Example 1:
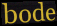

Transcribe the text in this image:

bode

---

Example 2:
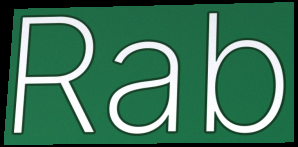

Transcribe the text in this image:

Rab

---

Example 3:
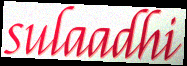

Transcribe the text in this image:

sulaadhi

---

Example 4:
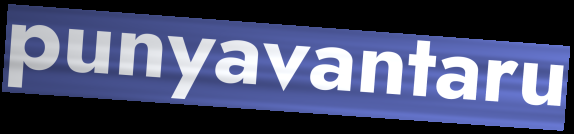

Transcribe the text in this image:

punyavantaru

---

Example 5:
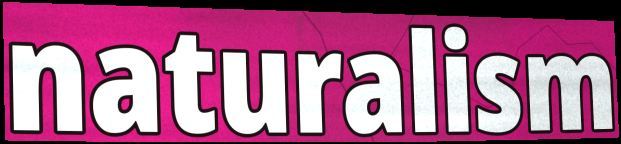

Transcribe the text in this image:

naturalism